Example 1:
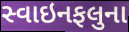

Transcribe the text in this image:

સ્વાઇનફલુના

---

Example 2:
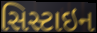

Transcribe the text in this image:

સિસ્ટાઇન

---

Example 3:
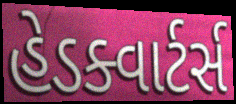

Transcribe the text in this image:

હેડક્વાર્ટર્સ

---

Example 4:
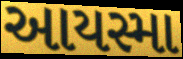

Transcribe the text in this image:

આયસ્મા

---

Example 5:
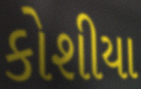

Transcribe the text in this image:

કોશીયા